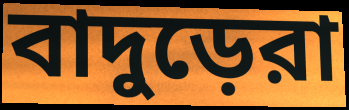
বাদুড়েরা